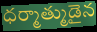
ధర్మాత్ముడైన